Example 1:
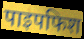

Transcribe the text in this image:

पाइपफिश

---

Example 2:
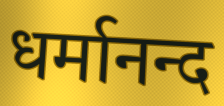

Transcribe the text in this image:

धर्मानन्द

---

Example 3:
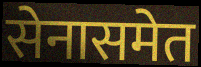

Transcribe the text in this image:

सेनासमेत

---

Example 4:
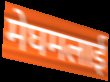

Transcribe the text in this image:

मेघमलाई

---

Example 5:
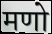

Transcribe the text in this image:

मणो